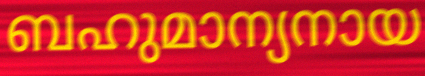
ബഹുമാന്യനായ